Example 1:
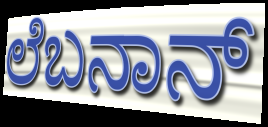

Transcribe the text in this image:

ಲೆಬನಾನ್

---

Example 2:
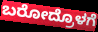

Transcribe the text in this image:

ಬರೋದ್ರೊಳಗೆ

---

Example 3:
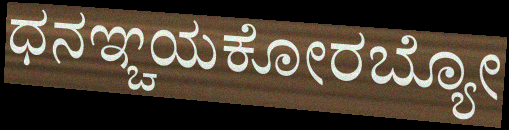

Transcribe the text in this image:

ಧನಞ್ಚಯಕೋರಬ್ಯೋ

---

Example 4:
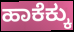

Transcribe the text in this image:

ಹಾಕೆಕ್ಕು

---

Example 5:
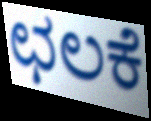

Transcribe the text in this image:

ಛಲಕೆ